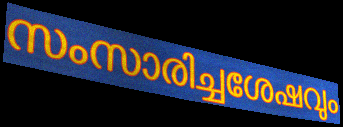
സംസാരിച്ചശേഷവും